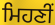
ਮਿਹਣੀਂ